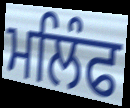
ਮਲਿੰਫ